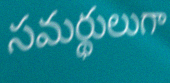
సమర్థులుగా